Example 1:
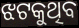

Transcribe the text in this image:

ଝଟକୁଥିବ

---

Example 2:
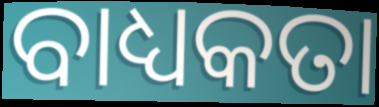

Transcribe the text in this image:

ବାଧ୍ୟକତା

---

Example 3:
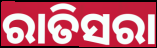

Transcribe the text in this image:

ରାତିସରା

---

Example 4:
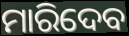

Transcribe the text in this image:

ମାରିଦେବ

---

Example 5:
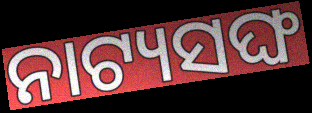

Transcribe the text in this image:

ନାଟ୍ୟସଙ୍ଘ